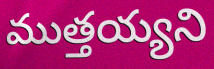
ముత్తయ్యని